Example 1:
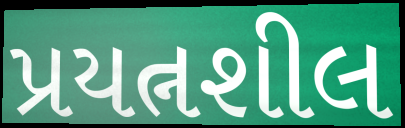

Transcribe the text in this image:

પ્રયત્નશીલ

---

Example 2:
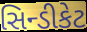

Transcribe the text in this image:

સિન્ડીકેટ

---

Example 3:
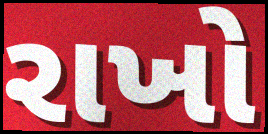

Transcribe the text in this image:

રાખો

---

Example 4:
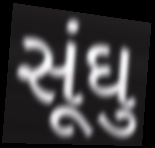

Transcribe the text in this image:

સૂંઘુ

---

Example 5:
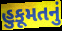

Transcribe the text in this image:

હુકૂમતનું